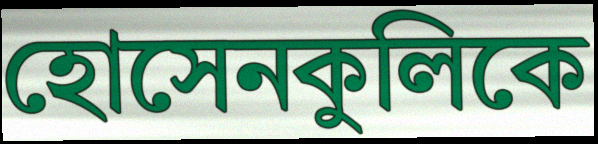
হোসেনকুলিকে